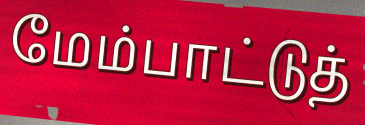
மேம்பாட்டுத்